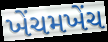
ખેંચમખેંચ